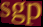
sgp